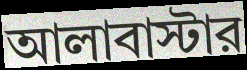
আলাবাস্টার